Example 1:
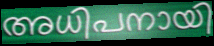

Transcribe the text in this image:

അധിപനായി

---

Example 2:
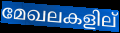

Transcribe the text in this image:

മേഖലകളില്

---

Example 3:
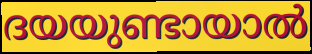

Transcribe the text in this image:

ദയയുണ്ടായാൽ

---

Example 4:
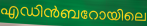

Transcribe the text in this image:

എഡിൻബറോയിലെ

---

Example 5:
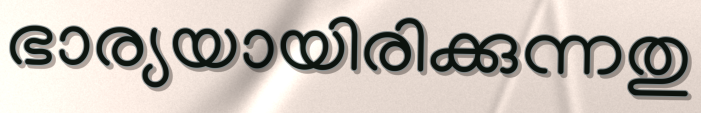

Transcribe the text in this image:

ഭാര്യയായിരിക്കുന്നതു